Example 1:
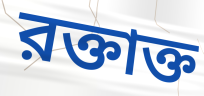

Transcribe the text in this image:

রক্তাক্ত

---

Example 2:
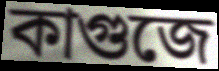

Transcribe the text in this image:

কাগুজে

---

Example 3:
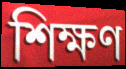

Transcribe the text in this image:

শিক্ষণ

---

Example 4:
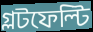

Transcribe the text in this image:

গ্লটফেল্টি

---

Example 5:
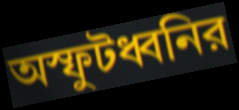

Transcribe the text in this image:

অস্ফুটধ্বনির